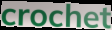
crochet